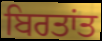
ਬਿਰਤਾਂਤ